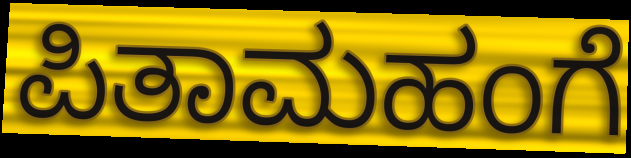
ಪಿತಾಮಹಂಗೆ